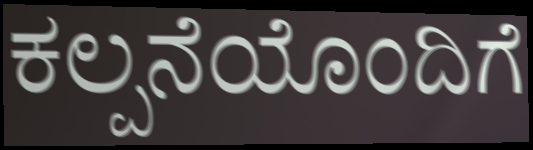
ಕಲ್ಪನೆಯೊಂದಿಗೆ